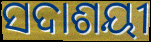
ସଦାଶୟୀ